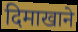
दिमाखाने